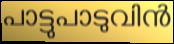
പാട്ടുപാടുവിൻ